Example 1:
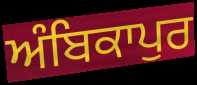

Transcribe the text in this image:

ਅੰਬਿਕਾਪੁਰ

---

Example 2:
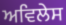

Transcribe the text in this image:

ਅਵਿਲੇਸ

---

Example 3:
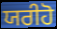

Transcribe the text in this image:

ਯਰੀਹੋ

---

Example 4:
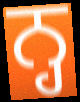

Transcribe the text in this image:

ਨ੍ਹ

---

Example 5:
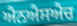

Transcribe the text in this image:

ਐਨਐਸਐਚ